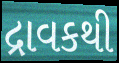
દ્રાવકથી